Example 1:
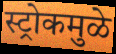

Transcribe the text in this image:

स्ट्रोकमुळे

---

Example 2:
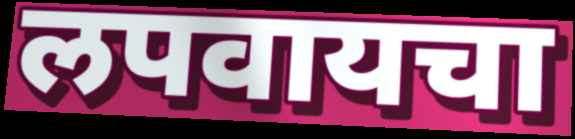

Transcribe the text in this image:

लपवायचा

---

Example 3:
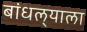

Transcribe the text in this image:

बांधल्याला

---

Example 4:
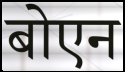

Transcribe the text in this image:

बोएन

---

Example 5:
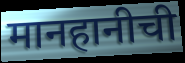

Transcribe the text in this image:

मानहानीची